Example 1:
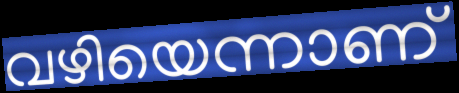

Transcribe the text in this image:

വഴിയെന്നാണ്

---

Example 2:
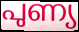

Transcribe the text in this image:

പുണ്യ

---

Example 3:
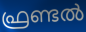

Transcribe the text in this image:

ഫ്രണ്ടൽ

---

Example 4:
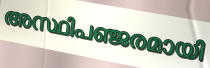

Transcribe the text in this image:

അസ്ഥിപഞ്ജരമായി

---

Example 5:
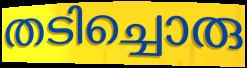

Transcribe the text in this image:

തടിച്ചൊരു